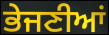
ਭੇਜਣੀਆਂ